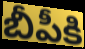
బీపీకి